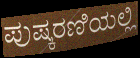
ಪುಷ್ಕರಣಿಯಲ್ಲಿ